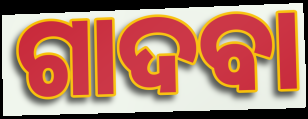
ଗାଦବା